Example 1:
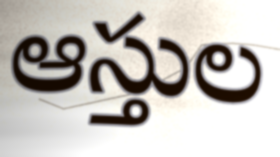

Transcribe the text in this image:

ఆస్తుల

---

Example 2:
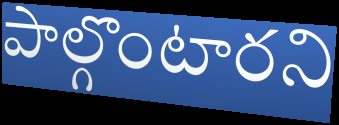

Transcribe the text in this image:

పాల్గొంటారని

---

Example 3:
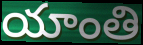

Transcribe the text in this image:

యాంతి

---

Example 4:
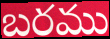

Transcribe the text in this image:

బరము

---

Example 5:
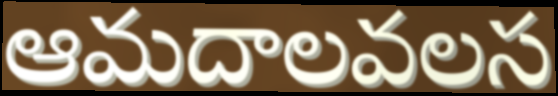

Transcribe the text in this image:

ఆమదాలవలస